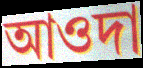
আওদা